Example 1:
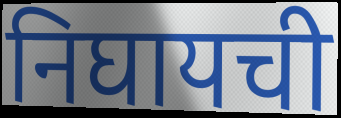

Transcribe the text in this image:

निघायची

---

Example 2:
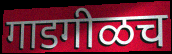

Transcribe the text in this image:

गाडगीळच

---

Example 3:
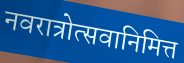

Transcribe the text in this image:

नवरात्रोत्सवानिमित्त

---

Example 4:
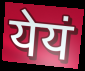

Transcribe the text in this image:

येयं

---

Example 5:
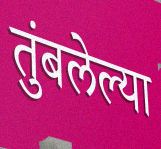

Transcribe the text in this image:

तुंबलेल्या